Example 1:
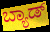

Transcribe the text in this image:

ಬ್ಯಾಡ್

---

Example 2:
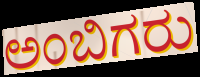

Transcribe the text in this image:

ಅಂಬಿಗರು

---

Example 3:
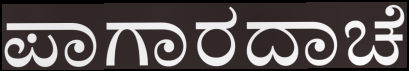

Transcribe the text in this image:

ಪಾಗಾರದಾಚೆ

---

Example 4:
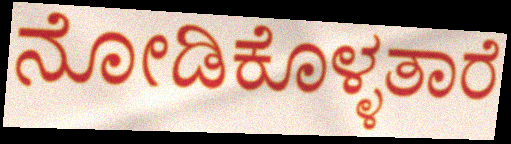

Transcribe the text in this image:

ನೋಡಿಕೊಳ್ಳತಾರೆ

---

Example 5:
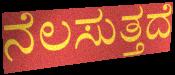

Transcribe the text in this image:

ನೆಲಸುತ್ತದೆ